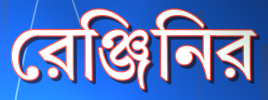
রেঞ্জিনির